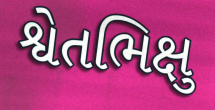
શ્વેતભિક્ષુ